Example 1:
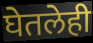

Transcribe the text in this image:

घेतलेही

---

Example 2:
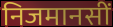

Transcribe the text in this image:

निजमानसीं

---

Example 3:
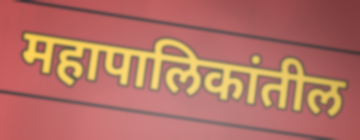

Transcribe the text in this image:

महापालिकांतील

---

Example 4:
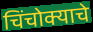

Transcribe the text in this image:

चिंचोक्याचे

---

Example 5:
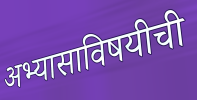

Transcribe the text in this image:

अभ्यासाविषयीची